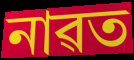
নাৱত